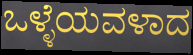
ಒಳ್ಳೆಯವಳಾದ